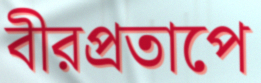
বীরপ্রতাপে